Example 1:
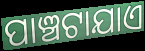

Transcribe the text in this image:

ପାଞ୍ଚଟାଯାଏ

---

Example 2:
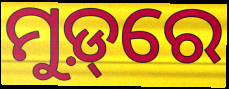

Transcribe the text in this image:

ମୁଡ଼୍‌ରେ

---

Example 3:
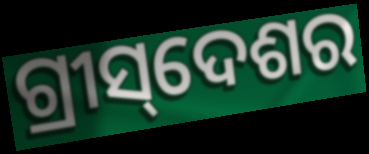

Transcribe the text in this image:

ଗ୍ରୀସ୍‌ଦେଶର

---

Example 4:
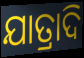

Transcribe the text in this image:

ଯାତ୍ରାଦି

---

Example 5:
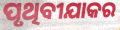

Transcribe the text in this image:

ପୃଥିବୀଯାକର